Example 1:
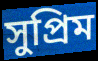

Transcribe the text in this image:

সুপ্রিম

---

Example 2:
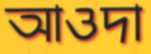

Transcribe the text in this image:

আওদা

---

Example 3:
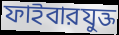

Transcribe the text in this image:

ফাইবারযুক্ত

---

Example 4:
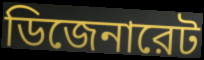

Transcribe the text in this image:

ডিজেনারেট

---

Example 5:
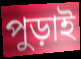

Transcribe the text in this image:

পুড়াই